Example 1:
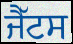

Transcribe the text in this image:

ਜੈੱਟਸ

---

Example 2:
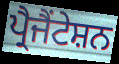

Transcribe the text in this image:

ਪ੍ਰੈਜੈਂਟੇਸ਼ਨ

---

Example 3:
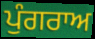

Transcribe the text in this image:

ਪੁੰਗਰਾਅ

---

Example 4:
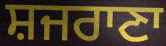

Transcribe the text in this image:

ਸ਼ਜਰਾਣਾ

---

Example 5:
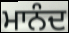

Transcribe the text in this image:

ਮਾਨੰਦ